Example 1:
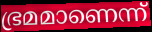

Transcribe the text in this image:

ഭ്രമമാണെന്ന്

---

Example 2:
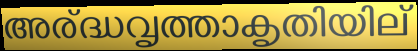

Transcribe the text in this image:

അര്ദ്ധവൃത്താകൃതിയില്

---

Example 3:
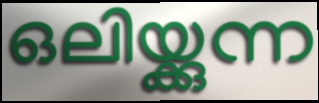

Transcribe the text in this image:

ഒലിയ്ക്കുന്ന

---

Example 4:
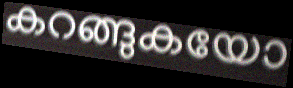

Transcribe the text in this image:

കറങ്ങുകയോ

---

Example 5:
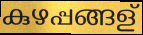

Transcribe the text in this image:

കുഴപ്പങ്ങള്